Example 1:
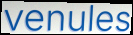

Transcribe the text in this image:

venules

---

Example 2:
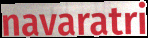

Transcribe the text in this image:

navaratri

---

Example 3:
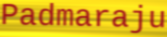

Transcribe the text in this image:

Padmaraju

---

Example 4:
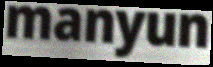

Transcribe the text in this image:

manyun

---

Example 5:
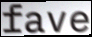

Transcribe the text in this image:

fave